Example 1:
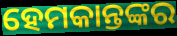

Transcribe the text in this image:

ହେମକାନ୍ତଙ୍କର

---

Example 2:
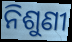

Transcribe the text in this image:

ନିଶୁଣୀ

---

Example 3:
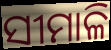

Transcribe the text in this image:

ସୀମାଳି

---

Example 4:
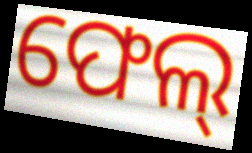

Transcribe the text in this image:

ଫେଲ୍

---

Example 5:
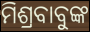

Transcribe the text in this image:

ମିଶ୍ରବାବୁଙ୍କ